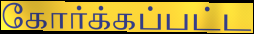
கோர்க்கப்பட்ட